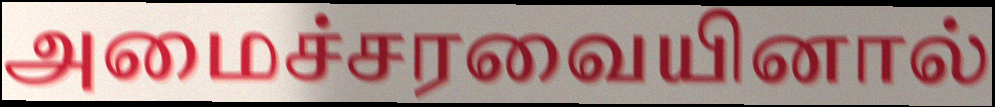
அமைச்சரவையினால்